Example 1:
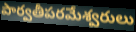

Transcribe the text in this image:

పార్వతీపరమేశ్వరులు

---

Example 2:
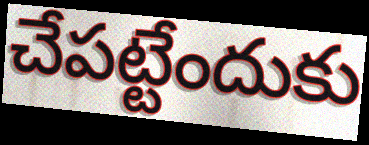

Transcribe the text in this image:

చేపట్టేందుకు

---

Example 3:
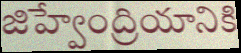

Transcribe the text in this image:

జిహ్వేంద్రియానికి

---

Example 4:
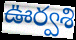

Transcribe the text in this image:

ఊర్వశి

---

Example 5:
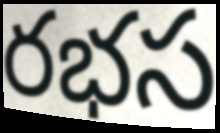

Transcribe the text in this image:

రభస